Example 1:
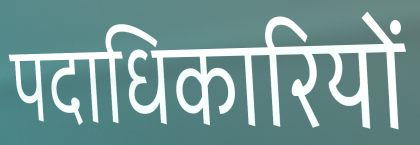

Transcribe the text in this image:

पदाधिकारियों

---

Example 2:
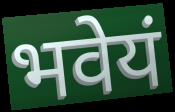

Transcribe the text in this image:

भवेयं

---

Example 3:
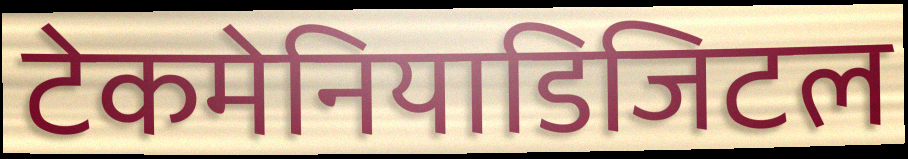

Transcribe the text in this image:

टेकमेनियाडिजिटल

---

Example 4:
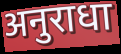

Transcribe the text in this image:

अनुराधा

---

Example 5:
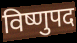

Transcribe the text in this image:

विष्णुपद